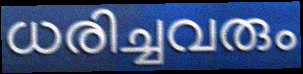
ധരിച്ചവരും